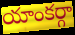
యాంకర్గా